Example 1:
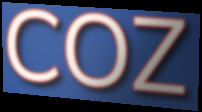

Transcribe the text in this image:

COZ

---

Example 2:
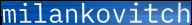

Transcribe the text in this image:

milankovitch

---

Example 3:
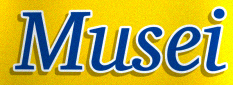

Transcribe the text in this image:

Musei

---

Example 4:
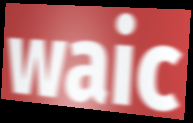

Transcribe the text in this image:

waic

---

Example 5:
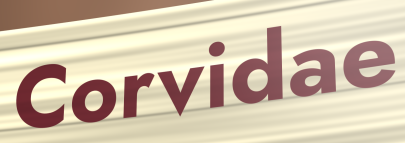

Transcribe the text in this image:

Corvidae